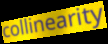
collinearity